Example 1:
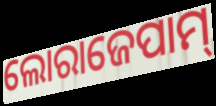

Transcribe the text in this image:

ଲୋରାଜେପାମ୍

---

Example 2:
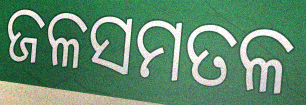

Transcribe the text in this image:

ଜଳସମତଳ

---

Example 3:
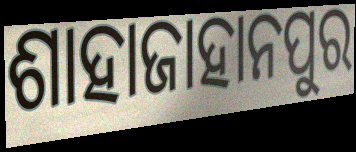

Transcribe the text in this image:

ଶାହାଜାହାନପୁର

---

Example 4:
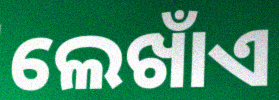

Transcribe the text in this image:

ଲେଖାଁଏ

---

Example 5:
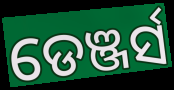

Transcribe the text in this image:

ଡେଞ୍ଜର୍ସ